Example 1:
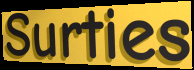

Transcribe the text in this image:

Surties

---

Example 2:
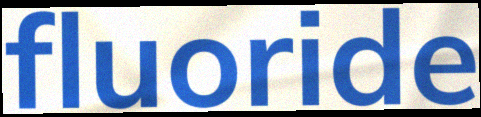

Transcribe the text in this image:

fluoride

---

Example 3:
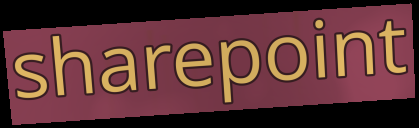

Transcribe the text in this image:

sharepoint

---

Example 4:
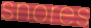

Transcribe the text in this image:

snores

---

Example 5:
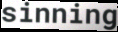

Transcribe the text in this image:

sinning